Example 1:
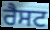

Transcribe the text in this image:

ਰੈਸਟ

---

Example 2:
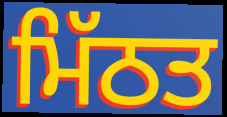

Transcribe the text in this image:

ਮਿੱਠਤ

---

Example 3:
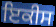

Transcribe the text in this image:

ਇਕੀਸ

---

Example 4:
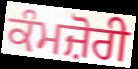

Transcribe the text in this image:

ਕੰਮਜ਼ੋਰੀ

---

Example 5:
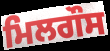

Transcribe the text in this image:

ਮਿਲਗੌਸ